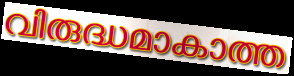
വിരുദ്ധമാകാത്ത